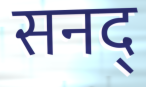
सनद्